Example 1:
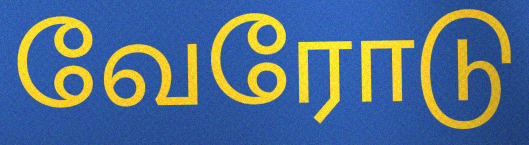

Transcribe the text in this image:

வேரோடு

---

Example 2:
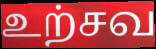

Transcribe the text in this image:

உற்சவ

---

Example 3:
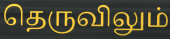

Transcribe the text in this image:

தெருவிலும்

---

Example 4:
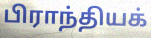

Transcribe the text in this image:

பிராந்தியக்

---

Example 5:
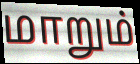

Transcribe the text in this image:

மாறும்